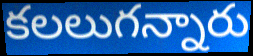
కలలుగన్నారు